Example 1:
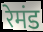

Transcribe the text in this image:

रेमंड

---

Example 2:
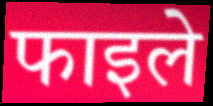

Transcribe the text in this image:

फाइले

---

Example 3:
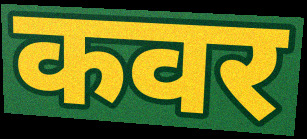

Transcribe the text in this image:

कवर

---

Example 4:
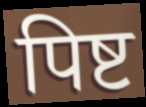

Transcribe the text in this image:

पिष्ट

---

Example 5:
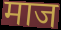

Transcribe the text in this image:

माज